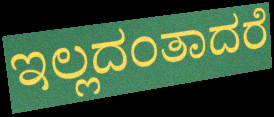
ಇಲ್ಲದಂತಾದರೆ